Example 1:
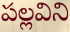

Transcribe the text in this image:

పల్లవిని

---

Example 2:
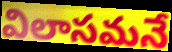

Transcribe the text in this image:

విలాసమనే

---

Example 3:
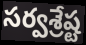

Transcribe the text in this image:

సర్వశ్రేష్ట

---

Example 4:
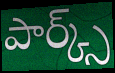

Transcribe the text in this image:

పార్క్స్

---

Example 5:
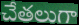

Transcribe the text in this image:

చేతలుగా